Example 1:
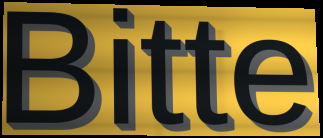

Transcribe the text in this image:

Bitte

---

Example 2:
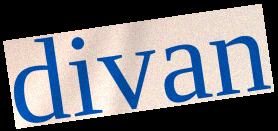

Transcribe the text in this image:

divan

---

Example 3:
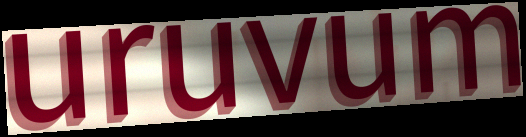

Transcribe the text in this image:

uruvum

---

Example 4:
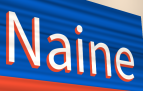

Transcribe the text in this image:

Naine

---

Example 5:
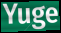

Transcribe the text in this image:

Yuge